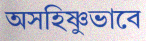
অসহিষ্ণুভাবে